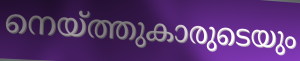
നെയ്ത്തുകാരുടെയും